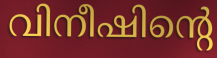
വിനീഷിന്റെ